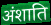
अंशाति